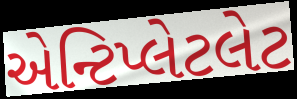
એન્ટિપ્લેટલેટ